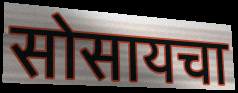
सोसायचा